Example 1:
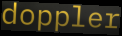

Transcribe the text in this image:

doppler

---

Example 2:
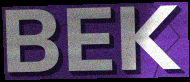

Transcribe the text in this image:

BEK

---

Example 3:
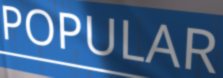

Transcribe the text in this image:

POPULAR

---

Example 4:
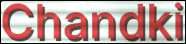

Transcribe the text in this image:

Chandki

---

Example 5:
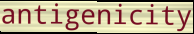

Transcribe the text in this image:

antigenicity